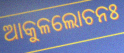
ଆକୁଳଲୋଚନଃ